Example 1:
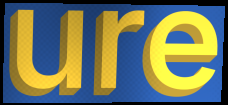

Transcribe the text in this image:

ure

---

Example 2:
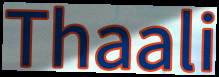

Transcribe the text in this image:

Thaali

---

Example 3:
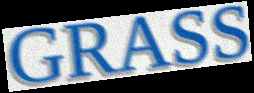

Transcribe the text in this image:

GRASS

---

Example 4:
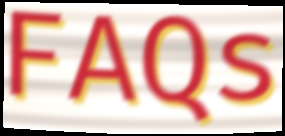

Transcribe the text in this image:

FAQs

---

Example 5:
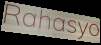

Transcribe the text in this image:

Rahasyo